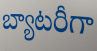
బ్యాటరీగా